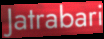
Jatrabari